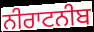
ਨੀਰਾਟਨੀਬ